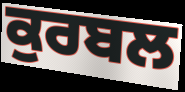
ਕੁਰਬਲ